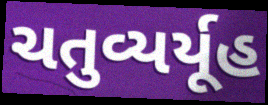
ચતુવ્યર્યૂહ